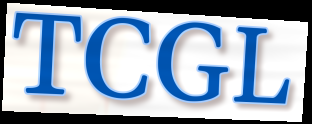
TCGL